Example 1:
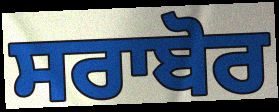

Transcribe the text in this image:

ਸਰਾਬੋਰ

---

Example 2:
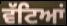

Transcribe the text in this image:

ਵੱਟਿਆਂ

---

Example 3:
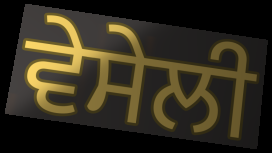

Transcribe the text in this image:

ਵੇਸੇਲੀ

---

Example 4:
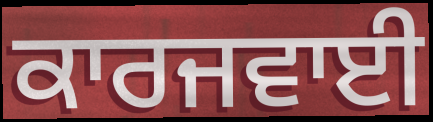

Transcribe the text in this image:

ਕਾਰਜਵਾਈ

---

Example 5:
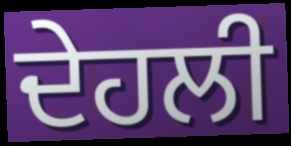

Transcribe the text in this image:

ਦੇਹਲੀ